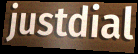
justdial